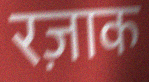
रज़ाक